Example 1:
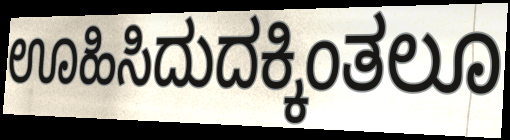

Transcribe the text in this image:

ಊಹಿಸಿದುದಕ್ಕಿಂತಲೂ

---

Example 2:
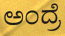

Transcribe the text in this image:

ಅಂದ್ರೆ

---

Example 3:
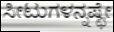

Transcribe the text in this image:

ಸೀಟುಗಳನ್ನಷ್ಟೇ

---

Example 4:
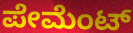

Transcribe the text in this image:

ಪೇಮೆಂಟ್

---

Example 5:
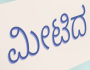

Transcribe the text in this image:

ಮೀಟಿದ